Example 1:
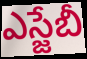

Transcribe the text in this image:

ఎస్జేబీ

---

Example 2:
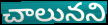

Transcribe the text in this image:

చాలునని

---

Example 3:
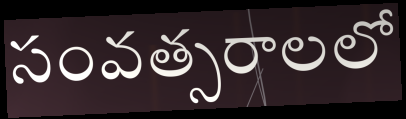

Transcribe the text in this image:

సంవత్సరాలలో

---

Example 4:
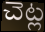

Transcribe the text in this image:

చెట్ల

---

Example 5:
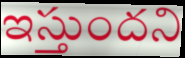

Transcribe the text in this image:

ఇస్తుందని